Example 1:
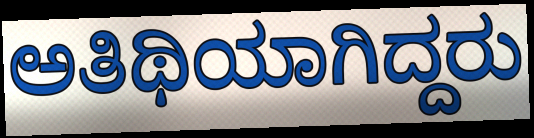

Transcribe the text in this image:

ಅತಿಥಿಯಾಗಿದ್ದರು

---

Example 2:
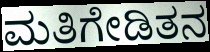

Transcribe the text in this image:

ಮತಿಗೇಡಿತನ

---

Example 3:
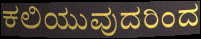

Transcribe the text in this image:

ಕಲಿಯುವುದರಿಂದ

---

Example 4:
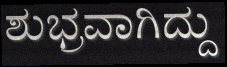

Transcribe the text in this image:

ಶುಭ್ರವಾಗಿದ್ದು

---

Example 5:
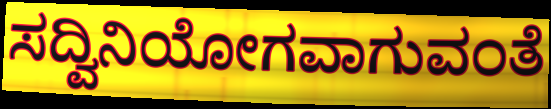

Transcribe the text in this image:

ಸದ್ವಿನಿಯೋಗವಾಗುವಂತೆ